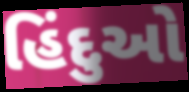
હિંદુઓ